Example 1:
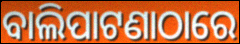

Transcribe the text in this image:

ବାଲିପାଟଣାଠାରେ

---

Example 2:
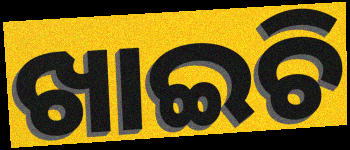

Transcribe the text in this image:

ଖାଇଚି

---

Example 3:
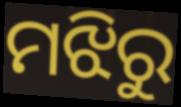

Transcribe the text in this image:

ମଝିରୁ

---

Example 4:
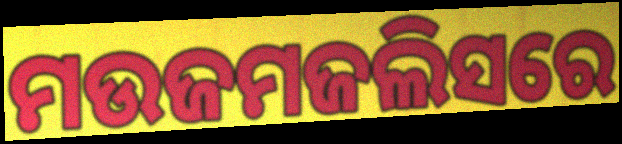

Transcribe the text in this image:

ମଉଜମଜଲିସରେ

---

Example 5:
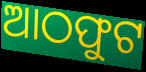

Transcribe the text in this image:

ଆଠଫୁଟ